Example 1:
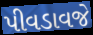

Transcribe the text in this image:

પીવડાવજે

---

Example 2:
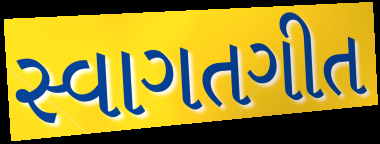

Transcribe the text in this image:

સ્વાગતગીત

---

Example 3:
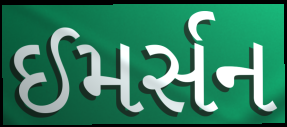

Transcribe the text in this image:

ઈમર્સન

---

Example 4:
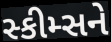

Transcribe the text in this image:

સ્કીમ્સને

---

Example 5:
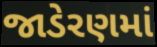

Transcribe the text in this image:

જાડેરણમાં